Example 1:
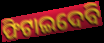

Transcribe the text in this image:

ଫିଟାଇଦେବି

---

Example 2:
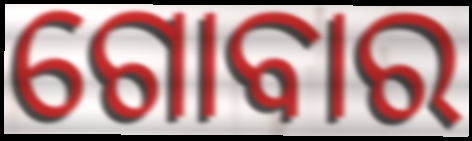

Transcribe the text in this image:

ଗୋବାର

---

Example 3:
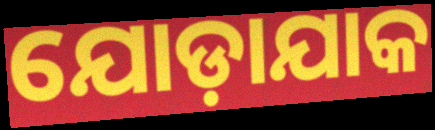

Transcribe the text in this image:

ଯୋଡ଼ାଯାକ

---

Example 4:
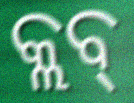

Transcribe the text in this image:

କ୍ଲବ୍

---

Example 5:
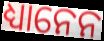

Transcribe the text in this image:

ଧ୍ୟାନେନ